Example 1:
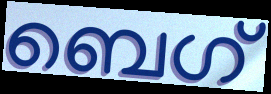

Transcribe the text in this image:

ബെഗ്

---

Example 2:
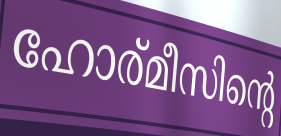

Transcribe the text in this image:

ഹോര്മീസിന്റെ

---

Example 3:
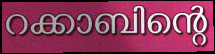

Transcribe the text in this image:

റക്കാബിന്റെ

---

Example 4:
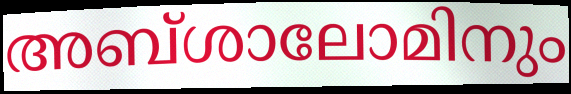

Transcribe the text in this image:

അബ്ശാലോമിനും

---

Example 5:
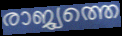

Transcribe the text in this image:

രാജ്യത്തെ